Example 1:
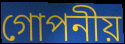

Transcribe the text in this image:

গোপনীয়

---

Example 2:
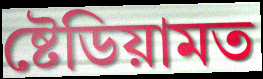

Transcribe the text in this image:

ষ্টেডিয়ামত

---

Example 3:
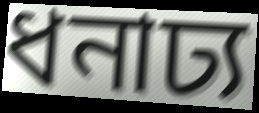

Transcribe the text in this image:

ধনাঢ্য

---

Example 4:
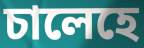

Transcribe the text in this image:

চালেহে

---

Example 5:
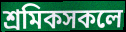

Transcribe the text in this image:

শ্ৰমিকসকলে